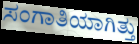
ಸಂಗಾತಿಯಾಗಿತ್ತು